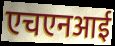
एचएनआई